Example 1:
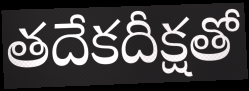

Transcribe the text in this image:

తదేకదీక్షతో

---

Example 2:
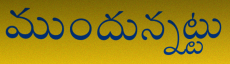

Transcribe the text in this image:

ముందున్నట్టు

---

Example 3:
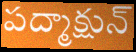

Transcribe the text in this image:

పద్మాక్షున్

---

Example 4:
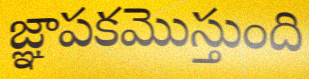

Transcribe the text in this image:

జ్ఞాపకమొస్తుంది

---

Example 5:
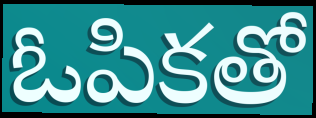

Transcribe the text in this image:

ఓపికతో